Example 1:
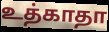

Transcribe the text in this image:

உத்காதா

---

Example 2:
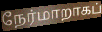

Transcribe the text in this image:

நேர்மாறாகப்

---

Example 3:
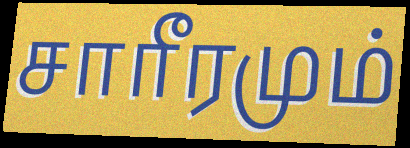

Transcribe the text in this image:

சாரீரமும்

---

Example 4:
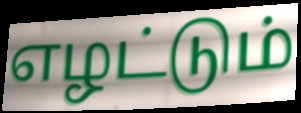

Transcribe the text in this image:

எழட்டும்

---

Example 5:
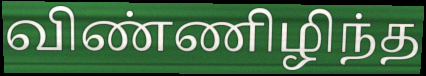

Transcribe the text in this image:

விண்ணிழிந்த